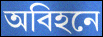
অবিহনে